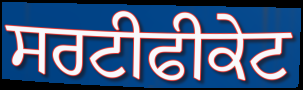
ਸਰਟੀਫੀਕੇਟ